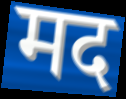
मद